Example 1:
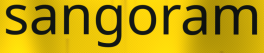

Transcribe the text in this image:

sangoram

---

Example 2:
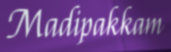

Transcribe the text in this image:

Madipakkam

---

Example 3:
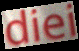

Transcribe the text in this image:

diei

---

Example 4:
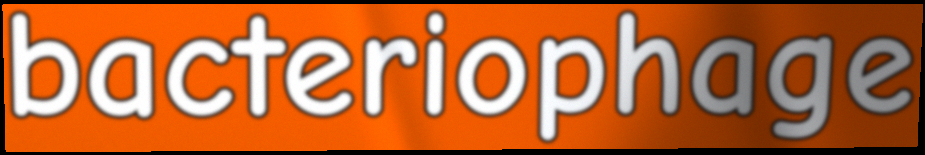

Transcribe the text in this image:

bacteriophage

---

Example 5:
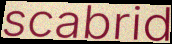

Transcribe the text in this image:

scabrid